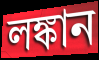
লঙ্কান